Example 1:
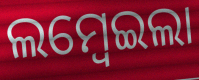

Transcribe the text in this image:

ଲମ୍ବେଇଲା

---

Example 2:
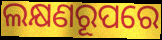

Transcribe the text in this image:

ଲକ୍ଷଣରୂପରେ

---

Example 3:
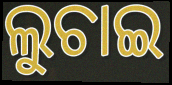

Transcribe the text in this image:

ଲୁଚାଇ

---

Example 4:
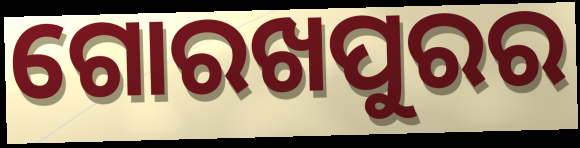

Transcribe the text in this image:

ଗୋରଖପୁରର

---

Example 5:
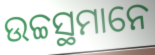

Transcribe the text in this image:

ଉଚ୍ଚସ୍ଥମାନେ